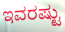
ಇವರಷ್ಟು